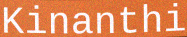
Kinanthi